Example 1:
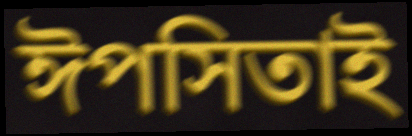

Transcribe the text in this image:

ঈপসিতাই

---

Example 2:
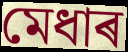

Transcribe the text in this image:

মেধাৰ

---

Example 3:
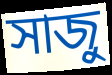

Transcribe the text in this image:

সাজু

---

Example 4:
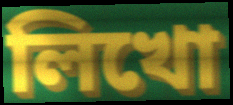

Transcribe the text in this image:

লিখো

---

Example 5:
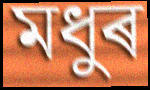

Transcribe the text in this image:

মধুৰ